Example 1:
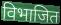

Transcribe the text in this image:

विभाजित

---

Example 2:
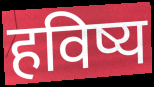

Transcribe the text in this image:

हविष्य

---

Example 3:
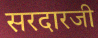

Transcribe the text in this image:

सरदारजी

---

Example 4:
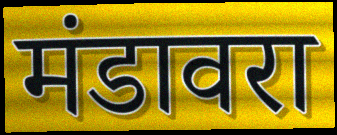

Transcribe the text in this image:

मंडावरा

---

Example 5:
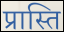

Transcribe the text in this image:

प्रास्ति